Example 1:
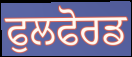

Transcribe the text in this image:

ਫੁਲਫੋਰਡ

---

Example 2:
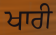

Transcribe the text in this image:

ਖਾਰੀ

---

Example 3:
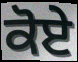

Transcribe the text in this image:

ਕੋਏ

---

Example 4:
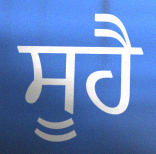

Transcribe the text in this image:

ਸੂਹੈ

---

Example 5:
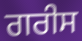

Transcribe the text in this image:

ਗਰੀਸ